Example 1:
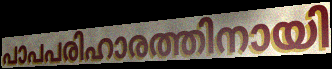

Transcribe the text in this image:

പാപപരിഹാരത്തിനായി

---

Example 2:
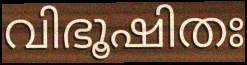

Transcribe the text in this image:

വിഭൂഷിതഃ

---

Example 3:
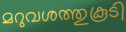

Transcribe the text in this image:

മറുവശത്തുകൂടി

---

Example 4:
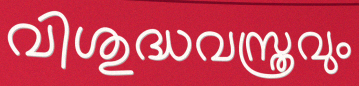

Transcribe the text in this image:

വിശുദ്ധവസ്ത്രവും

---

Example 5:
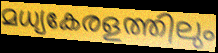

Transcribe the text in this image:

മധ്യകേരളത്തിലും